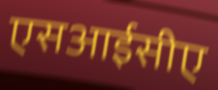
एसआईसीए